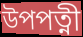
উপপত্নী